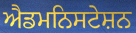
ਐਡਮਨਿਸਟੇਸ਼ਨ